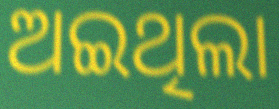
ଅଇଥିଲା